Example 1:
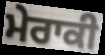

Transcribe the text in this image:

ਮੇਰਾਕੀ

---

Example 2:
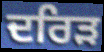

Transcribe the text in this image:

ਦਰਿੜ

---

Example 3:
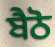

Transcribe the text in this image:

ਬੈਠੋ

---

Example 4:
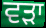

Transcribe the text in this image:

ਵੜਾ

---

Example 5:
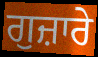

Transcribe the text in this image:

ਗੁਜ਼ਾਰੇ